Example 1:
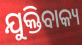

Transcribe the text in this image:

ଯୁକ୍ତିବାକ୍ୟ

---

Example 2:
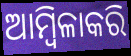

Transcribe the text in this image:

ଆମ୍ବିଳାକରି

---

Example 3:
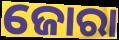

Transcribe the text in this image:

ଜୋରା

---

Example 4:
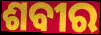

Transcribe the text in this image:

ଶବୀର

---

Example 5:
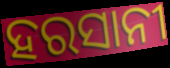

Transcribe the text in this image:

ହରସାନୀ